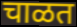
चाळत